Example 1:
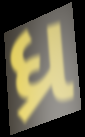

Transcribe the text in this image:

ધ્ર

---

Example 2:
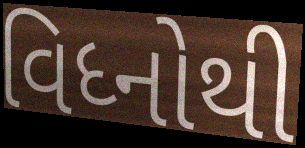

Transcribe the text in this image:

વિધ્નોથી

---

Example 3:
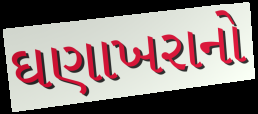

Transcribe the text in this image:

ઘણાખરાનો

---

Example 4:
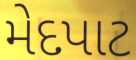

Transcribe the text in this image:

મેદપાટ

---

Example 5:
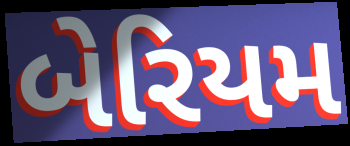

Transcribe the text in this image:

બેરિયમ